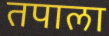
तपाला